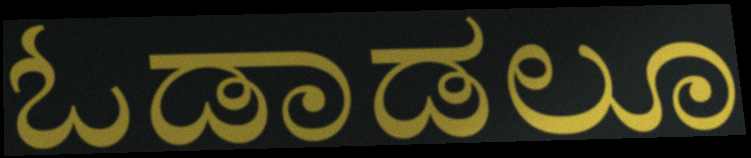
ಓಡಾಡಲೂ